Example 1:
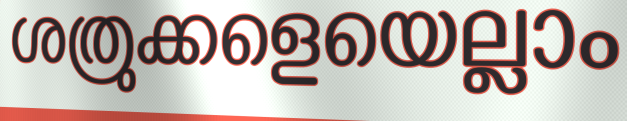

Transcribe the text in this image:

ശത്രുക്കളെയെല്ലാം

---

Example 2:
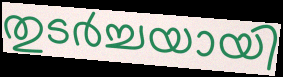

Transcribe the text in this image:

തുടർച്ചയായി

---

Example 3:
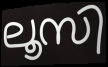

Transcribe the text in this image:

ലൂസി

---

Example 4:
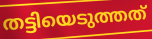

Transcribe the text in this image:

തട്ടിയെടുത്തത്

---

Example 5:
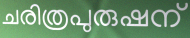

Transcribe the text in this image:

ചരിത്രപുരുഷന്